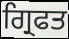
ਗ੍ਰਿਫਤ